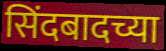
सिंदबादच्या